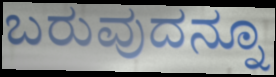
ಬರುವುದನ್ನೂ